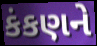
કંકણને